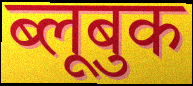
ब्लूबुक